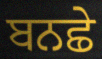
ਬਨਛੇ